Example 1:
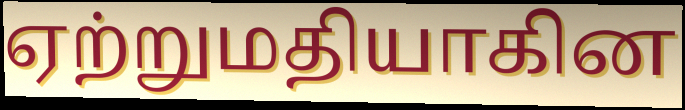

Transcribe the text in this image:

ஏற்றுமதியாகின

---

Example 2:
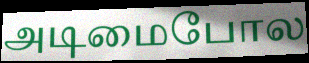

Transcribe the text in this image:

அடிமைபோல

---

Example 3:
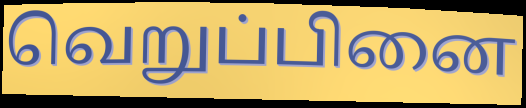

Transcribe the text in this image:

வெறுப்பினை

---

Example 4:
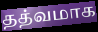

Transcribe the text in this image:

தத்வமாக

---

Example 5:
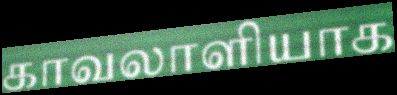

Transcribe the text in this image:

காவலாளியாக